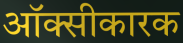
ऑक्सीकारक